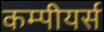
कम्पीयर्स